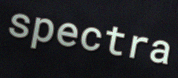
spectra